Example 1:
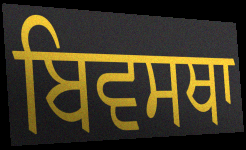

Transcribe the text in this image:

ਬਿਵਸਥਾ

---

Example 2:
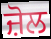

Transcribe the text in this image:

ਜ਼ੋਲ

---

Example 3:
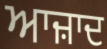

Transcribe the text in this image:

ਆਜ਼ਾਦ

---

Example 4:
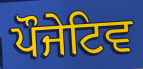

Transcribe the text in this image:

ਪੌਜੇਟਿਵ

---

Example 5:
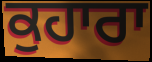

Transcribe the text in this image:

ਕੁਹਾਰਾ